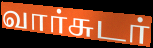
வார்சுடர்